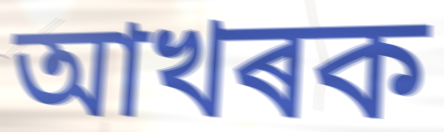
আখৰক